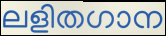
ലളിതഗാന